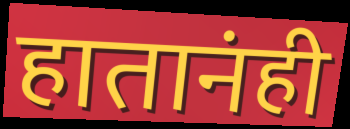
हातानंही